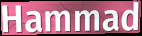
Hammad